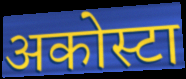
अकोस्टा